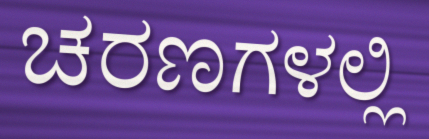
ಚರಣಗಳಲ್ಲಿ